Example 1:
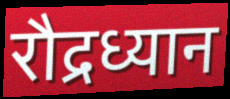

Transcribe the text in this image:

रौद्रध्यान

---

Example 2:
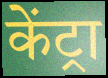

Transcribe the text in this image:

केंट्रा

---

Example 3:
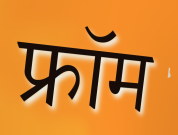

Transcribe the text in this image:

फ्रॉम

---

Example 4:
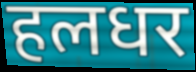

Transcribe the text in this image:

हलधर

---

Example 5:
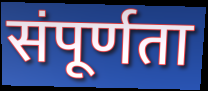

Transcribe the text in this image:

संपूर्णता